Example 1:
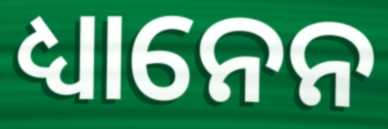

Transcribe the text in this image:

ଧ୍ୟାନେନ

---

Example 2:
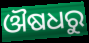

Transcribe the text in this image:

ଔଷଧରୁ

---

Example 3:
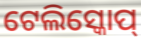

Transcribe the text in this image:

ଟେଲିସ୍କୋପ୍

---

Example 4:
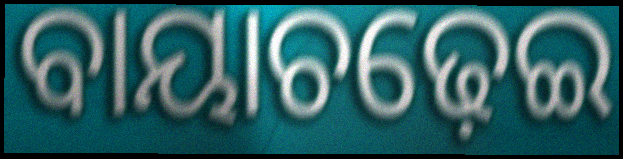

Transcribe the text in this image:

ବାୟାଚଢ଼େଇ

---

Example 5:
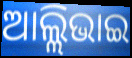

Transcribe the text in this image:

ଆଲ୍ଲିଭାଇ